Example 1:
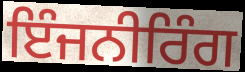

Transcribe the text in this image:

ਇੰਜਨੀਰਿੰਗ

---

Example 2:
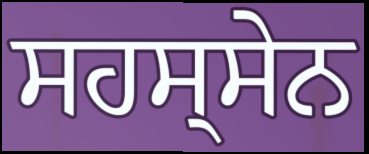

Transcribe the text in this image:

ਸਹਸ੍ਸੇਨ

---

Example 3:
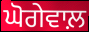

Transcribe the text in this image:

ਘੋਗੇਵਾਲ਼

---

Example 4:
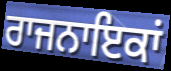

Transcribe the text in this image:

ਰਾਜਨਾਇਕਾਂ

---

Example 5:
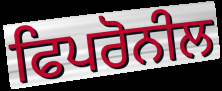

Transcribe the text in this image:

ਫਿਪਰੋਨੀਲ